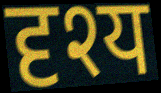
दृश्य